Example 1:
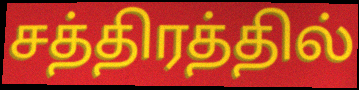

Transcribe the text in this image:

சத்திரத்தில்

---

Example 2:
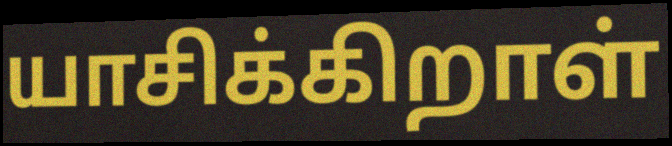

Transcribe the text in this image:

யாசிக்கிறாள்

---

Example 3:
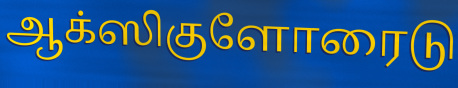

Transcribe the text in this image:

ஆக்ஸிகுளோரைடு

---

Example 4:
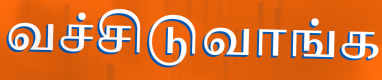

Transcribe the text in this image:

வச்சிடுவாங்க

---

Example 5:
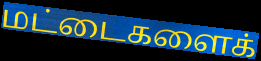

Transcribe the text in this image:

மட்டைகளைக்